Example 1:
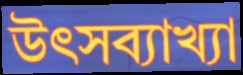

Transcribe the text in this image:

উৎসব্যাখ্যা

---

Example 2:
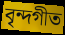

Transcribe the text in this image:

বৃন্দগীত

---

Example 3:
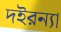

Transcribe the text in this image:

দইরন্যা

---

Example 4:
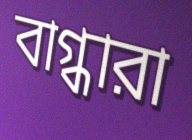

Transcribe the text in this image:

বাগ্ধারা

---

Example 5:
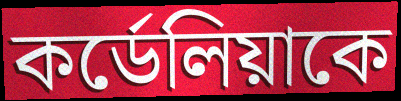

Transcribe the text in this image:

কর্ডেলিয়াকে